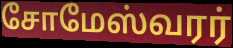
சோமேஸ்வரர்